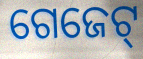
ଗେଜେଟ୍